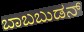
ಬಾಬಬುಡನ್